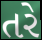
તરે